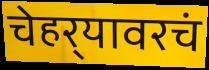
चेहर्‍यावरचं